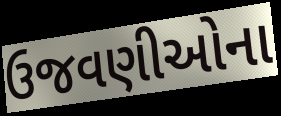
ઉજવણીઓના